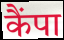
कैंपा